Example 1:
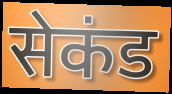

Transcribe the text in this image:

सेकंड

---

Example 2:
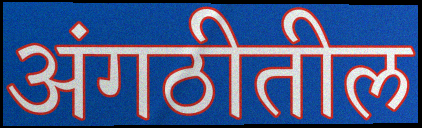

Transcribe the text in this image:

अंगठीतील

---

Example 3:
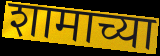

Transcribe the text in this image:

शामाच्या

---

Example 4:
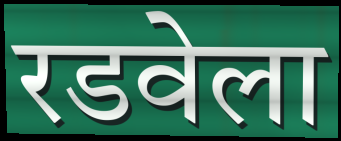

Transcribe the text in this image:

रडवेला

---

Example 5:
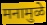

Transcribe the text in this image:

मनामुळे